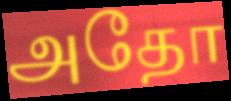
அதோ